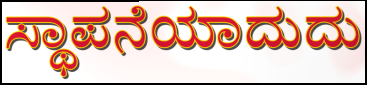
ಸ್ಥಾಪನೆಯಾದುದು